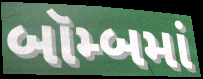
બૉમ્બમાં